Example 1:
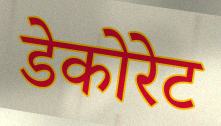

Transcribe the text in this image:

डेकोरेट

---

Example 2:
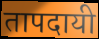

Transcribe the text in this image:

तापदायी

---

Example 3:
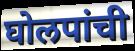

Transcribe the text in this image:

घोलपांची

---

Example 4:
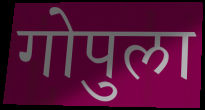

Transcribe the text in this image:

गोपुला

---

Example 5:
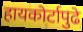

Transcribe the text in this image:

हायकोर्टापुढे